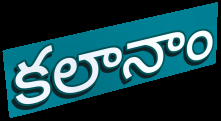
కలానాం